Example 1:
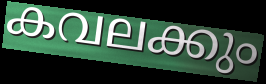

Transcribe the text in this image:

കവലക്കും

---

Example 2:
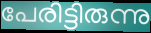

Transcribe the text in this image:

പേരിട്ടിരുന്നു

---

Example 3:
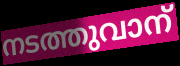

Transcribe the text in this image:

നടത്തുവാന്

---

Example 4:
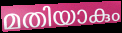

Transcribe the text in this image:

മതിയാകും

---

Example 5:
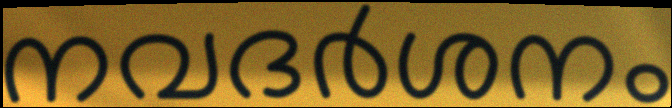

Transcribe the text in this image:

നവദർശനം